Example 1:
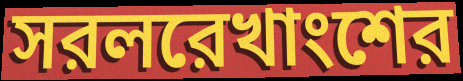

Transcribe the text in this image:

সরলরেখাংশের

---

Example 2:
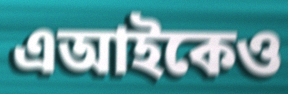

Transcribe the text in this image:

এআইকেও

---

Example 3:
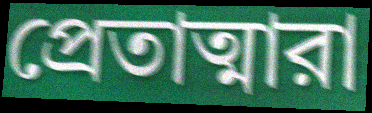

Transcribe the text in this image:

প্রেতাত্মারা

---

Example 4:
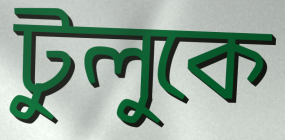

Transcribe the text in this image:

টুলুকে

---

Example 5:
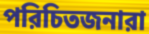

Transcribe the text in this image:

পরিচিতজনারা